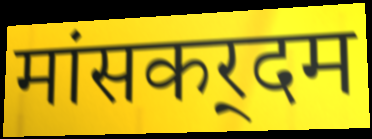
मांसकर्दम